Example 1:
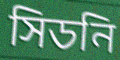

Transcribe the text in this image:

সিডনি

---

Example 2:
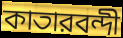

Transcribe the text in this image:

কাতারবন্দী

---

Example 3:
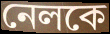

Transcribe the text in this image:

নেলকে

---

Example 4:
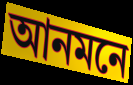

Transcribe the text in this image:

আনমনে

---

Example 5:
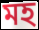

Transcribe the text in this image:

মহ